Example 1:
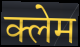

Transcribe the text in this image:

क्लेम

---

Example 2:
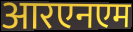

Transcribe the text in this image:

आरएनएम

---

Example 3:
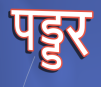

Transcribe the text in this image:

पड्डर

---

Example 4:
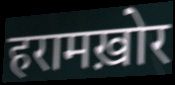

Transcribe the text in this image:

हरामख़ोर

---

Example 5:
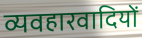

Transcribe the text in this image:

व्यवहारवादियों